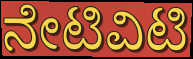
ನೇಟಿವಿಟಿ